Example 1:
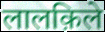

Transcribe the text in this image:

लालक़िले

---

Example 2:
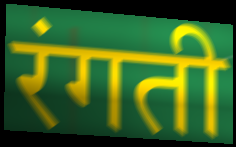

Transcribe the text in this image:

रंगती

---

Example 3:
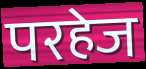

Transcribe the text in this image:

परहेज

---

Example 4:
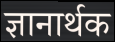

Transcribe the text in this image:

ज्ञानार्थक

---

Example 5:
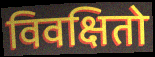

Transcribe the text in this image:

विवक्षितो